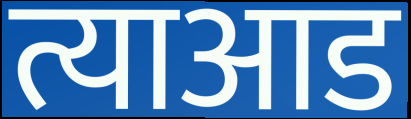
त्याआड